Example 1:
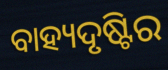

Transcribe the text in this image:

ବାହ୍ୟଦୃଷ୍ଟିର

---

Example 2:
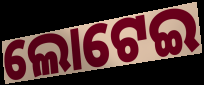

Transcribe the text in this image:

ଲୋଟେଇ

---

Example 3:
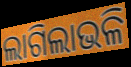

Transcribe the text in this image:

ଲାଗିଲାଭଳି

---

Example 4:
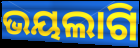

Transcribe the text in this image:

ଭୟଲାଗି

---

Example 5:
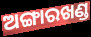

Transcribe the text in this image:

ଅଙ୍ଗାରଖଣ୍ଡ